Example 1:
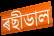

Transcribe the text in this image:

ৰছীডাল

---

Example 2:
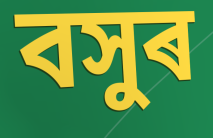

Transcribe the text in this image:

বসুৰ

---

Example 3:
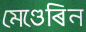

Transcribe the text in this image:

মেণ্ডেৰিন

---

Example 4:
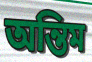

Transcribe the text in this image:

অন্তিম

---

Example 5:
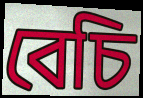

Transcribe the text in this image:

বেচি